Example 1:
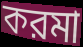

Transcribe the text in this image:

করমা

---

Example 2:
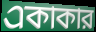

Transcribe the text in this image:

একাকার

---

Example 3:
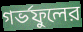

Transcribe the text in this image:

গর্ভফুলের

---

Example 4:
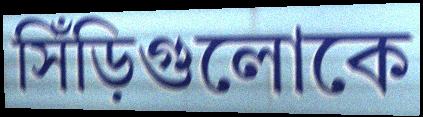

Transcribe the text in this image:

সিঁড়িগুলোকে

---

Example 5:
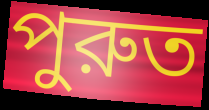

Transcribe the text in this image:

পুরুত